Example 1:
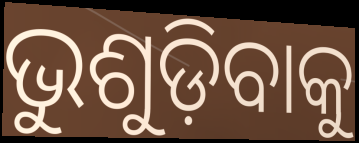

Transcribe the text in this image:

ଭୁଶୁଡ଼ିବାକୁ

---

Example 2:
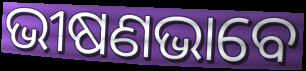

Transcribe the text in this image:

ଭୀଷଣଭାବେ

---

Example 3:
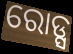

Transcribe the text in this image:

ରୋଡ୍ସ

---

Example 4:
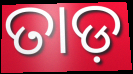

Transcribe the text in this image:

ତାଡ଼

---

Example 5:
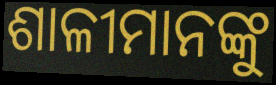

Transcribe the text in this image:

ଶାଳୀମାନଙ୍କୁ